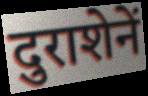
दुराशेनें